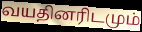
வயதினரிடமும்